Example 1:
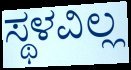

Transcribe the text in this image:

ಸ್ಥಳವಿಲ್ಲ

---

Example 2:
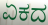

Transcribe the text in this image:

ಏಕದ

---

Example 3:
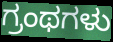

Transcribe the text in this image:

ಗ್ರಂಥಗಳು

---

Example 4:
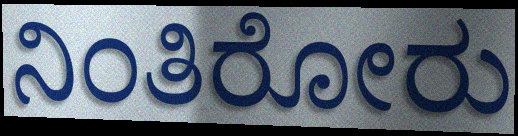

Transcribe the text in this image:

ನಿಂತಿರೋರು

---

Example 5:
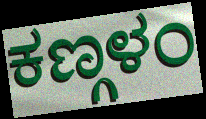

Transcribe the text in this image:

ಕಣ್ಗಳಂ